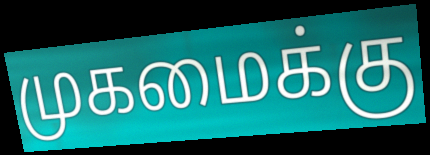
முகமைக்கு